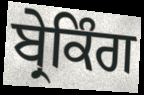
ਬ੍ਰੇਕਿੰਗ